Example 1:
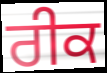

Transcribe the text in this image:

ਰੀਕ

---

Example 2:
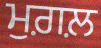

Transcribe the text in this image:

ਮੁਗ਼ਲ਼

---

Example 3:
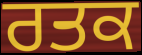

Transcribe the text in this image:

ਰਤਕ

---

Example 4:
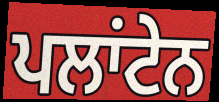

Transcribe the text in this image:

ਪਲਾਂਟੇਨ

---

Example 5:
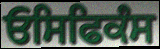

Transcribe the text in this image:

ਓਸਿਫਿਕੰਸ